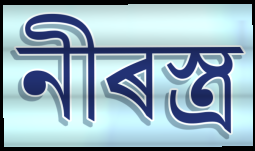
নীৰস্ত্ৰ